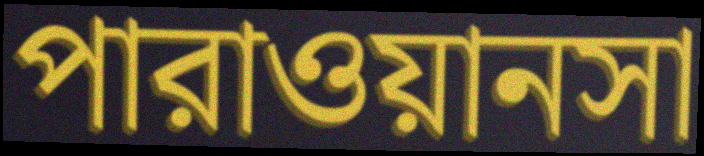
পারাওয়ানসা